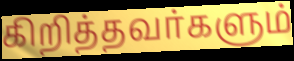
கிறித்தவர்களும்